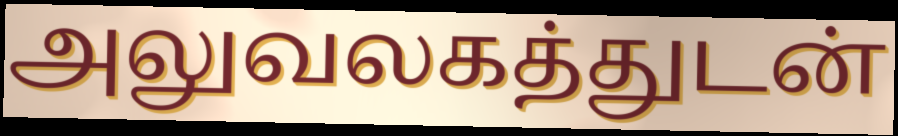
அலுவலகத்துடன்